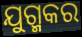
ଯୁଗ୍ମକର